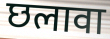
छलावा